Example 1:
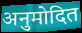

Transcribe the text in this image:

अनुमोदित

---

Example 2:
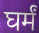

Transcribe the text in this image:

घर्मं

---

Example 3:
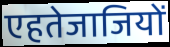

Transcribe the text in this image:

एहतेजाजियों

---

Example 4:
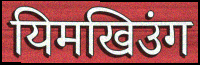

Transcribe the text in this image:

यिमखिउंग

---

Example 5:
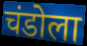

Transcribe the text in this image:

चंडोला